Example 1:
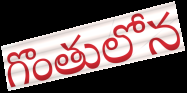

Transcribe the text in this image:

గొంతులోన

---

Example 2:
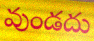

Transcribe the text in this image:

వుండదు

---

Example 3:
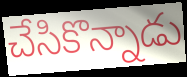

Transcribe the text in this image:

చేసికొన్నాడు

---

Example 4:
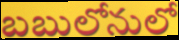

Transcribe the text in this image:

బబులోనులో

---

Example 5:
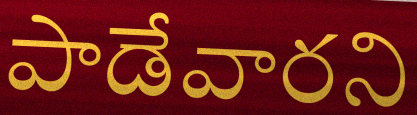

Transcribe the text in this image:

పాడేవారని